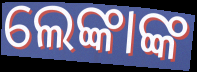
ଲେଙ୍କାଙ୍କ